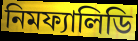
নিমফ্যালিডি